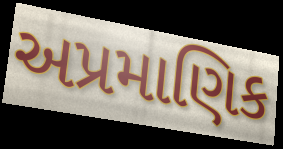
અપ્રમાણિક